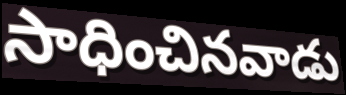
సాధించినవాడు